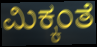
ಮಿಕ್ಕಂತೆ